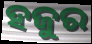
ହଜୁର